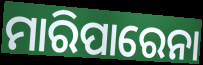
ମାରିପାରେନା